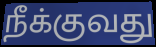
நீக்குவது